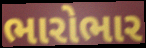
ભારોભાર